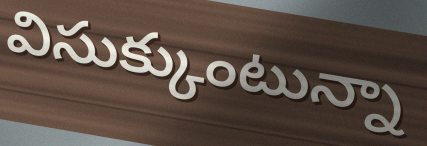
విసుక్కుంటున్నా